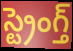
స్ట్రెంగ్త్